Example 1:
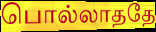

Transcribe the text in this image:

பொல்லாததே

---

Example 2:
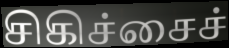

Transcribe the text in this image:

சிகிச்சைச்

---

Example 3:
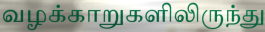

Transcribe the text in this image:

வழக்காறுகளிலிருந்து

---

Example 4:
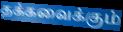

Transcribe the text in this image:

தக்கவைக்கும்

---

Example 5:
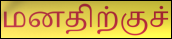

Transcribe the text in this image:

மனதிற்குச்